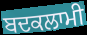
ਬਦਕਲਾਮੀ